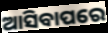
ଆସିବାପରେ